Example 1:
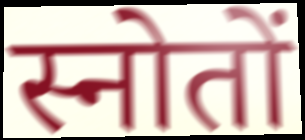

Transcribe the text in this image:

स्नोतों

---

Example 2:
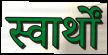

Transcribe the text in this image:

स्वार्थों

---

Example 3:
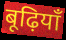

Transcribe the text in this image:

बूढ़ियाँ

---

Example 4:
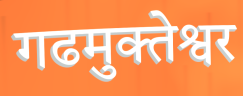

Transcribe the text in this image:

गढमुक्तेश्वर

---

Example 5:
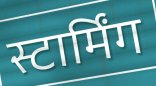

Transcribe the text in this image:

स्टार्मिंग